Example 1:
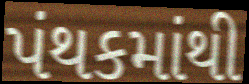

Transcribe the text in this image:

પંથકમાંથી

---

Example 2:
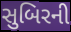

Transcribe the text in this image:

સુબિરની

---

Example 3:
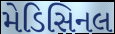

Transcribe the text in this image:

મેડિસિનલ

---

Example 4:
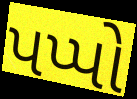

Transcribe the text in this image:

પપ્પો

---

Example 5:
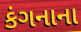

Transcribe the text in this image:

કંગનાના